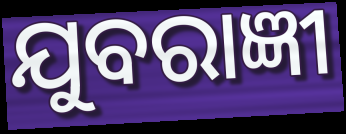
ଯୁବରାଜ୍ଞୀ